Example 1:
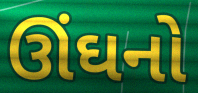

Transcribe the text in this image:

ઊંઘનો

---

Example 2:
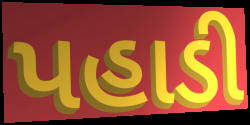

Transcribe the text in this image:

પહાડી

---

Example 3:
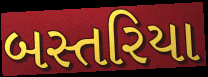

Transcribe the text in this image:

બસ્તરિયા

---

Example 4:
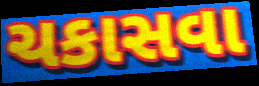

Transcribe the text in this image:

ચકાસવા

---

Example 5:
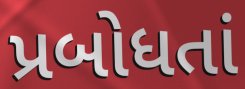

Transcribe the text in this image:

પ્રબોધતાં